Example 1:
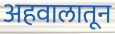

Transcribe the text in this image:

अहवालातून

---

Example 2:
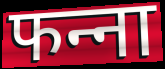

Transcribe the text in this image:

फन्ना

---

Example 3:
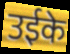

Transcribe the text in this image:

उईके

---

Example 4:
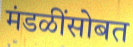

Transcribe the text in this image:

मंडळींसोबत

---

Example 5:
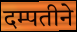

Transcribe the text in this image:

दम्पतीने